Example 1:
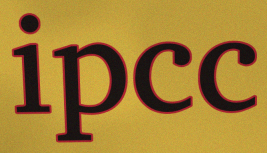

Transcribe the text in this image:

ipcc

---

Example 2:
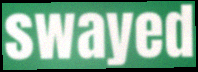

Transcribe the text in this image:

swayed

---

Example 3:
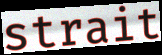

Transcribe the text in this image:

strait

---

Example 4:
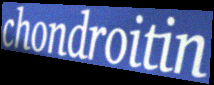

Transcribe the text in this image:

chondroitin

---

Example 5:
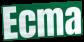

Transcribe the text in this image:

Ecma